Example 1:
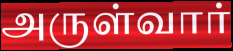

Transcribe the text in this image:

அருள்வார்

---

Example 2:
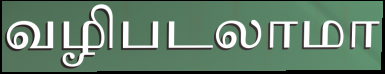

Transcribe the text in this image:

வழிபடலாமா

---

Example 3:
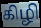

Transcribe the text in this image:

கிழி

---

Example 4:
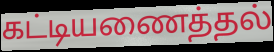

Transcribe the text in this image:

கட்டியணைத்தல்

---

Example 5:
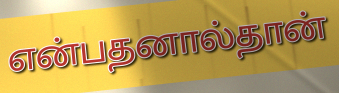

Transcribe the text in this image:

என்பதனால்தான்